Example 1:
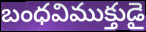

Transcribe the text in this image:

బంధవిముక్తుడై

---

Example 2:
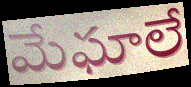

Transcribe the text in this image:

మేఘాలే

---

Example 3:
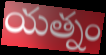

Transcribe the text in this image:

యత్నం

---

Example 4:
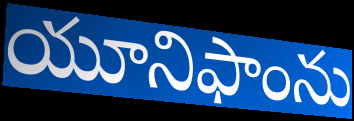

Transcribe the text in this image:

యూనిఫాంను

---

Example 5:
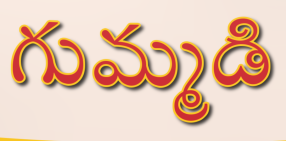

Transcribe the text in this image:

గుమ్మడి